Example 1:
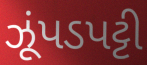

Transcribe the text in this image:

ઝૂંપડપટ્ટી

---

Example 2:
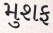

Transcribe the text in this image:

મુશફ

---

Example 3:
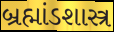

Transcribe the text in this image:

બ્રહ્માંડશાસ્ત્ર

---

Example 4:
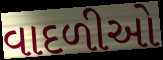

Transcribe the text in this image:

વાદળીઓ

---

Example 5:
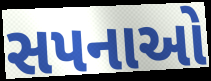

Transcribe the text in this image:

સપનાઓ